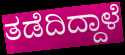
ತಡೆದಿದ್ದಾಳೆ